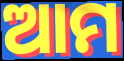
ଆମ